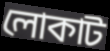
লোকাট